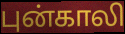
புன்காலி